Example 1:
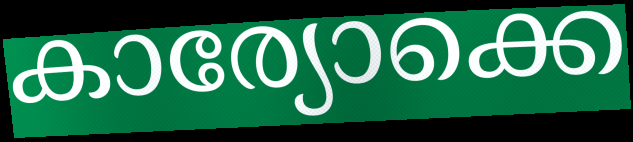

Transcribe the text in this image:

കാര്യോക്കെ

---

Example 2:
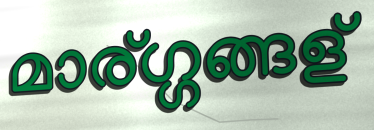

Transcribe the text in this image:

മാര്ഗ്ഗങ്ങള്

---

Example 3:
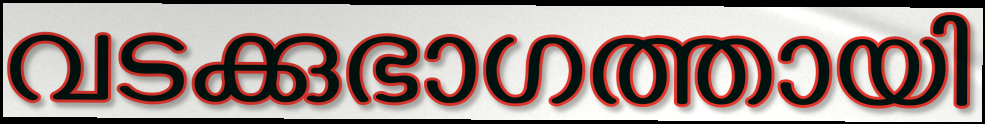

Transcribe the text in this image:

വടക്കുഭാഗത്തായി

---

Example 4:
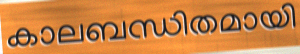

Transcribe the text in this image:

കാലബന്ധിതമായി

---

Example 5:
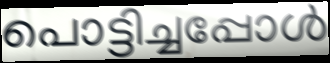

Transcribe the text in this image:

പൊട്ടിച്ചപ്പോൾ